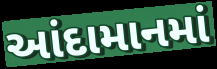
આંદામાનમાં